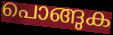
പൊങ്ങുക